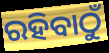
ରହିବାଠୁଁ